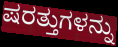
ಷರತ್ತುಗಳನ್ನು